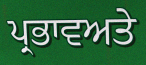
ਪ੍ਰਭਾਵਅਤੇ